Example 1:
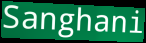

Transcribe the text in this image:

Sanghani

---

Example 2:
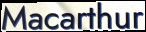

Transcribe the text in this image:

Macarthur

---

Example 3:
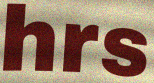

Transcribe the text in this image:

hrs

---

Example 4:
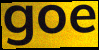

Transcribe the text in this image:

goe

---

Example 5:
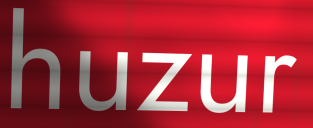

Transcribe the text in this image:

huzur